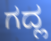
ಗದ್ಲ